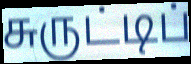
சுருட்டிப்